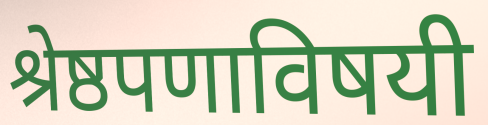
श्रेष्ठपणाविषयी